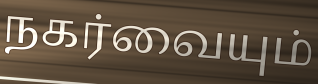
நகர்வையும்